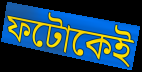
ফটোকেই